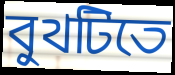
বুথটিতে